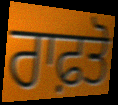
ਰਾਫ਼ਤੋ